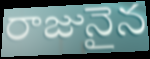
రాజునైన